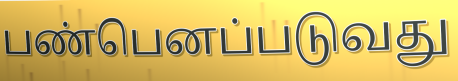
பண்பெனப்படுவது